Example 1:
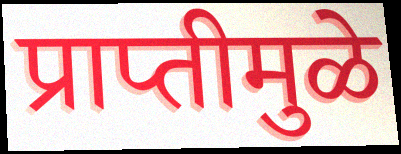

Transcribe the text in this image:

प्राप्तीमुळे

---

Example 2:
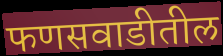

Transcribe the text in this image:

फणसवाडीतील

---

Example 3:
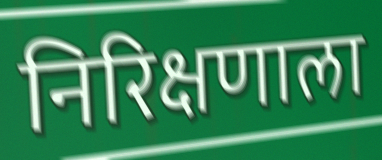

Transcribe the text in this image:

निरिक्षणाला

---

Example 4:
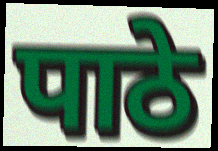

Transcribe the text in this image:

पाठे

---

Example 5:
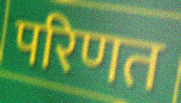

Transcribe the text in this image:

परिणत